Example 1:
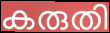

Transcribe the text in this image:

കരുതി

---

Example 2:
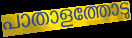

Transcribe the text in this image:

പാതാളത്തോടു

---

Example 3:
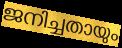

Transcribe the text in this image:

ജനിച്ചതായും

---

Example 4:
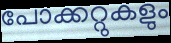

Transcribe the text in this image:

പോക്കറ്റുകളും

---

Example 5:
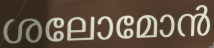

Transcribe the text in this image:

ശലോമോൻ